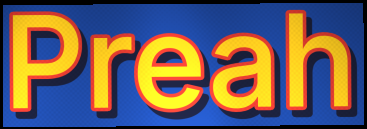
Preah